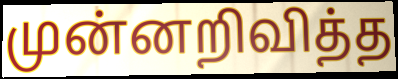
முன்னறிவித்த